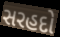
સરહદો